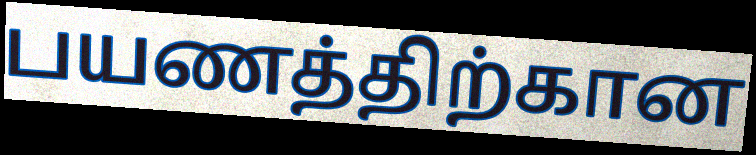
பயணத்திற்கான